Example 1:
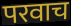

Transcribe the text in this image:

परवाच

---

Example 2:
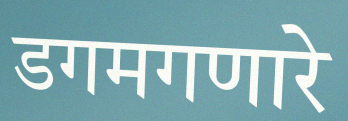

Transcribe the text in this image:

डगमगणारे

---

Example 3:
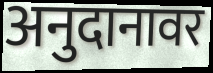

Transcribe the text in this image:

अनुदानावर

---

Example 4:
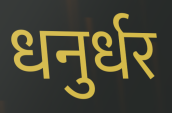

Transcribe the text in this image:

धनुर्धर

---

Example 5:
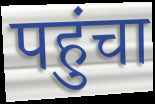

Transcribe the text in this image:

पहुंचा